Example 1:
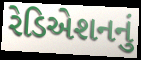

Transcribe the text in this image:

રેડિએશનનું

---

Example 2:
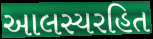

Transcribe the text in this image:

આલસ્યરહિત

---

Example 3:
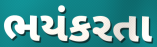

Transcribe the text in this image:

ભયંકરતા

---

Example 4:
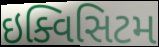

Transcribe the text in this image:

ઇક્વિસિટમ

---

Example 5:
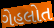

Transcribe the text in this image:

ગેહલોત